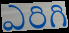
ఎరిగి